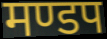
मण्‍डप